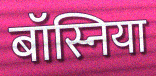
बॉस्निया